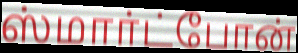
ஸ்மார்ட்போன்